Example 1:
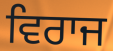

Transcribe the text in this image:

ਵਿਰਾਜ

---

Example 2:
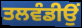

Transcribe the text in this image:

ਤਲਵੰਡੀਉਂ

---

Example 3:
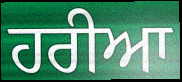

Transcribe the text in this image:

ਹਰੀਆ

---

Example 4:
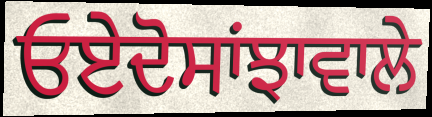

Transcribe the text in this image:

ਓਏਦੋਸਾਂਝਾਵਾਲੇ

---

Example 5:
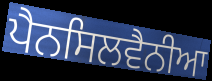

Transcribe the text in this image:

ਪੈਨਸਿਲਵੈਨੀਆ